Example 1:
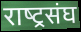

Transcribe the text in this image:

राष्ट्रसंघ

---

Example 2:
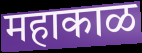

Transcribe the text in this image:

महाकाळ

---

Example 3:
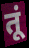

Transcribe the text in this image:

तूं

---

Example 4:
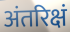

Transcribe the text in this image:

अंतरिक्षं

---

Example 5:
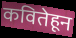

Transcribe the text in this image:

कवितेहून